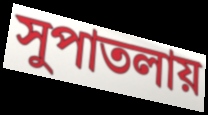
সুপাতলায়